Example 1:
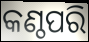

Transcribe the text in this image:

କଣ୍ଠପରି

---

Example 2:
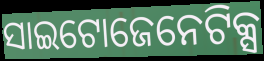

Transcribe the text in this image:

ସାଇଟୋଜେନେଟିକ୍ସ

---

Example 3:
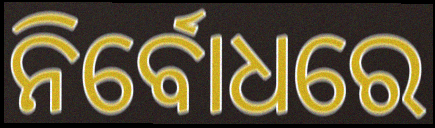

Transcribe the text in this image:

ନିର୍ବୋଧରେ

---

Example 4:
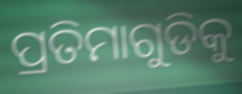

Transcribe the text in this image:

ପ୍ରତିମାଗୁଡିକୁ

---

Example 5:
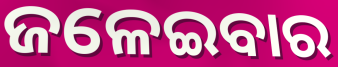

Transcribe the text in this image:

ଜଳେଇବାର